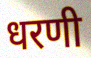
धरणी